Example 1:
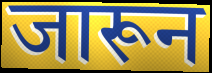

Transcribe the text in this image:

जारून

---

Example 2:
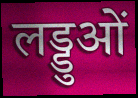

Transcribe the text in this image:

लड्डुओं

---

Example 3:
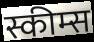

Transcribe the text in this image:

स्कीम्स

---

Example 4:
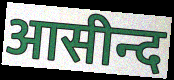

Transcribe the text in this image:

आसीन्द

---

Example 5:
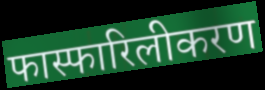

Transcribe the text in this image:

फास्फारिलीकरण